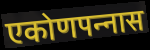
एकोणपन्नास